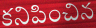
కనిపించిన